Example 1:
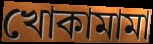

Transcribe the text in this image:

খোকামামা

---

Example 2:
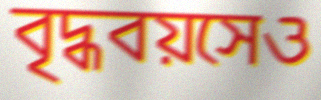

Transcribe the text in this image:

বৃদ্ধবয়সেও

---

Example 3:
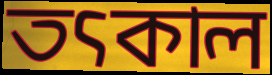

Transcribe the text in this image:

তৎকাল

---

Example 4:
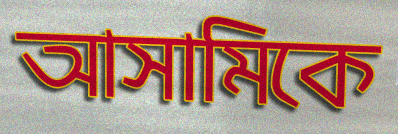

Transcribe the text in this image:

আসামিকে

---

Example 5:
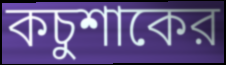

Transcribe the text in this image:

কচুশাকের